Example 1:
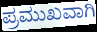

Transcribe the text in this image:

ಪ್ರಮುಖವಾಗಿ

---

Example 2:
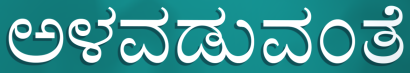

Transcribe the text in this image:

ಅಳವಡುವಂತೆ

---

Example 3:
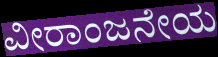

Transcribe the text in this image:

ವೀರಾಂಜನೇಯ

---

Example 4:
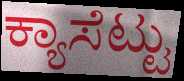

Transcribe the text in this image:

ಕ್ಯಾಸೆಟ್ಟು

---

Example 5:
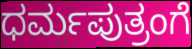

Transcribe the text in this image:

ಧರ್ಮಪುತ್ರಂಗೆ